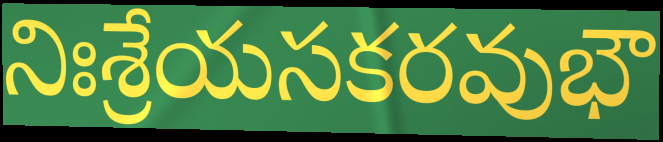
నిఃశ్రేయసకరవుభౌ